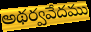
అథర్వవేదము